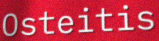
Osteitis